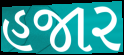
હજાર